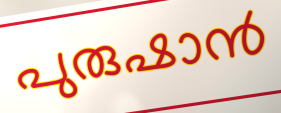
പുരുഷാൻ